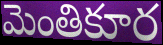
మెంతికూర